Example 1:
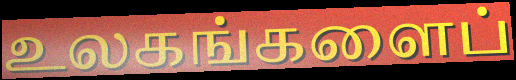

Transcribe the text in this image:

உலகங்களைப்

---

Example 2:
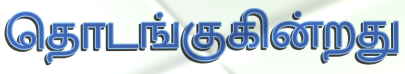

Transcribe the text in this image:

தொடங்குகின்றது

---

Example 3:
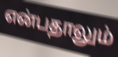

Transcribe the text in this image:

என்பதாலும்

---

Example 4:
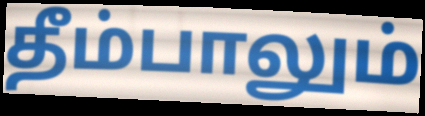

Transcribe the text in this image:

தீம்பாலும்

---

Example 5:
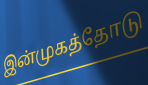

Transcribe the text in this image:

இன்முகத்தோடு